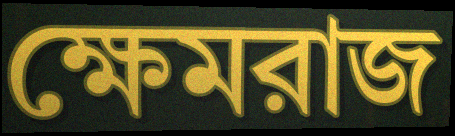
ক্ষেমরাজ